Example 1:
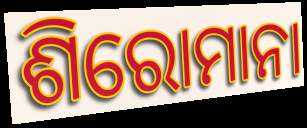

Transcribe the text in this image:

ଶିରୋମାନା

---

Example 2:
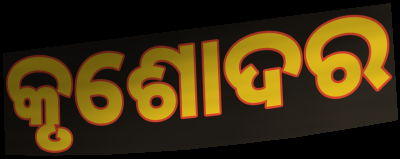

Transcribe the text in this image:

କୃଶୋଦର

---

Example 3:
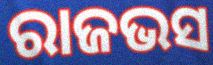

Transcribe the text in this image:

ରାଜଭସ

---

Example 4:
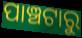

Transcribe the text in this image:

ପାଞ୍ଚଟାରୁ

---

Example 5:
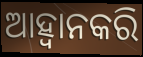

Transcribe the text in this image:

ଆହ୍ୱାନକରି